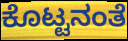
ಕೊಟ್ಟನಂತೆ